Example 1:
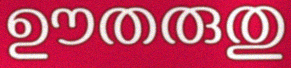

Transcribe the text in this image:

ഊതരുതു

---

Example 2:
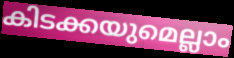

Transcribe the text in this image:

കിടക്കയുമെല്ലാം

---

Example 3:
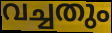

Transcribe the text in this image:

വച്ചതും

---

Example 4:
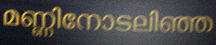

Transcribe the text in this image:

മണ്ണിനോടലിഞ്ഞ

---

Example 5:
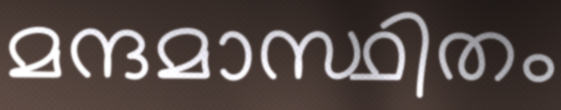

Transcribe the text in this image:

മന്ദമാസ്ഥിതം